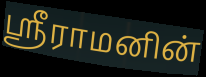
ஸ்ரீராமனின்